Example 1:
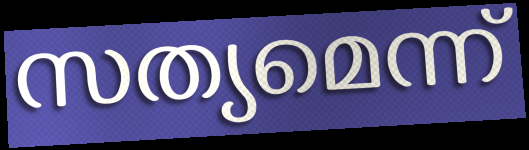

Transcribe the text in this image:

സത്യമെന്ന്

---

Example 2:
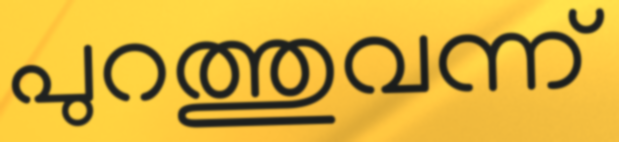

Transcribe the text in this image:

പുറത്തുവന്ന്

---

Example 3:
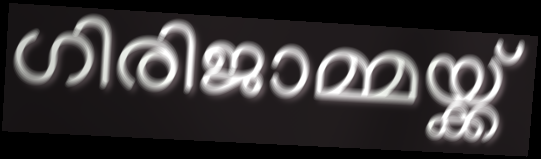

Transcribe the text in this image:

ഗിരിജാമ്മയ്ക്ക്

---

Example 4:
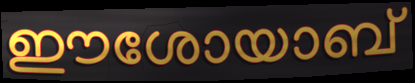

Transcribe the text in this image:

ഈശോയാബ്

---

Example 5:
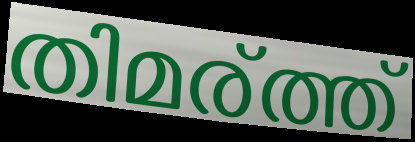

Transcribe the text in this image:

തിമര്ത്ത്